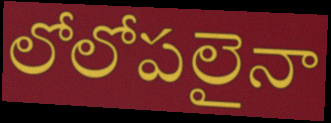
లోలోపలైనా